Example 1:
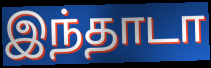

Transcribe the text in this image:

இந்தாடா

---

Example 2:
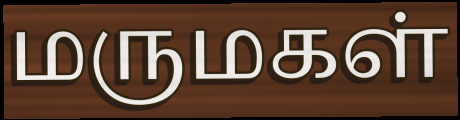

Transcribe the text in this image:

மருமகள்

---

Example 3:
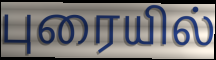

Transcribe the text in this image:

புரையில்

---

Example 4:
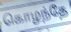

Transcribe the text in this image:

கொழந்தே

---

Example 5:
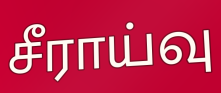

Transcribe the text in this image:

சீராய்வு